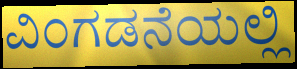
ವಿಂಗಡನೆಯಲ್ಲಿ